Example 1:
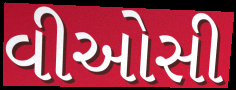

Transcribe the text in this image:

વીઓસી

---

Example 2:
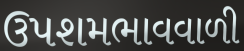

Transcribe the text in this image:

ઉપશમભાવવાળી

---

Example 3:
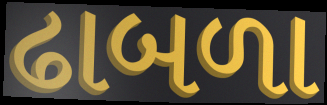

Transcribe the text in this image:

ઢાબળા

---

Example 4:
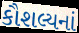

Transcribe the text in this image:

કૌશલ્યનાં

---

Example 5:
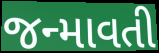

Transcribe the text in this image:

જન્માવતી